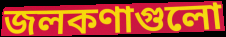
জলকণাগুলো